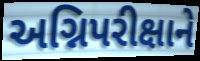
અગ્નિપરીક્ષાને